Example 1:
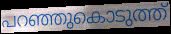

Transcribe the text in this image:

പറഞ്ഞുകൊടുത്ത്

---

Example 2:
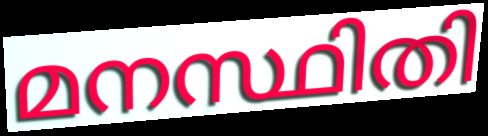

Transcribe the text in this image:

മനസ്ഥിതി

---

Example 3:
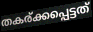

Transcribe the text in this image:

തകര്ക്കപ്പെട്ടത്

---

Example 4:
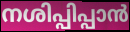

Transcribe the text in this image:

നശിപ്പിപ്പാൻ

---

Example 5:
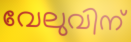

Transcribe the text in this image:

വേലുവിന്